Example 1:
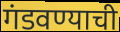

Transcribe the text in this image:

गंडवण्याची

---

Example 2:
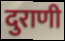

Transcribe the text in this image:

दुराणी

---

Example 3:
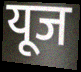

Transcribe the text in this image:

यूज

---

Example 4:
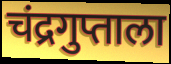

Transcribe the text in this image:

चंद्रगुप्ताला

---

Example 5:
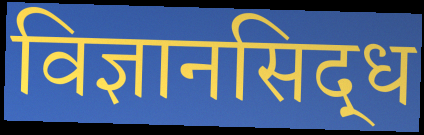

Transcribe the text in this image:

विज्ञानसिद्ध